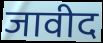
जावीद